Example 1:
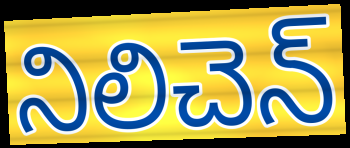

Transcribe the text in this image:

నిలిచెన్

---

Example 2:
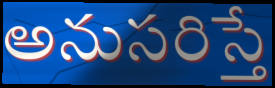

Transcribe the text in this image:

అనుసరిస్తే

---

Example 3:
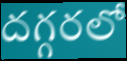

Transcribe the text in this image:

దగ్గరలో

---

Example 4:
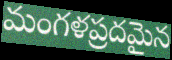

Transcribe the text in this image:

మంగళప్రదమైన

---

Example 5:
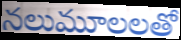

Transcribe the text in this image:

నలుమూలలతో